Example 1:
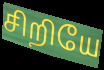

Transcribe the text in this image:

சிறியே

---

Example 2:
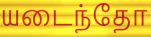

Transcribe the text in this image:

யடைந்தோ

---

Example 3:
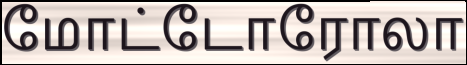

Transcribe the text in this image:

மோட்டோரோலா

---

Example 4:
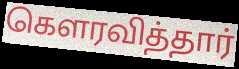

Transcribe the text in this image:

கௌரவித்தார்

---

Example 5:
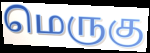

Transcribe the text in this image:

மெருகு